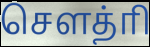
சௌத்ரி